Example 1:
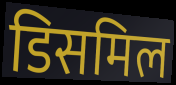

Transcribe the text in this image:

डिसमिल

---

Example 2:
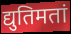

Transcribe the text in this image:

द्युतिमतां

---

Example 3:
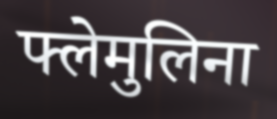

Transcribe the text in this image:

फ्लेमुलिना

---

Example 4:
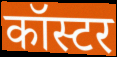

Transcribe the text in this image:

कॉस्टर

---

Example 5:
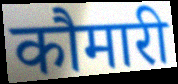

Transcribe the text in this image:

कौमारी